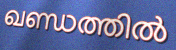
ഖണ്ഡത്തിൽ